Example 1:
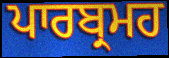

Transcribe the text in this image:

ਪਾਰਬ੍ਰਮਹ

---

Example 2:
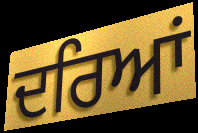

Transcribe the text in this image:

ਦਰਿਆਂ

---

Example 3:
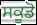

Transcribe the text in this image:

ਸਕੂਡੋ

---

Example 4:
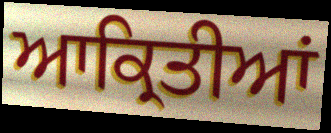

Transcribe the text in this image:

ਆਕ੍ਰਿਤੀਆਂ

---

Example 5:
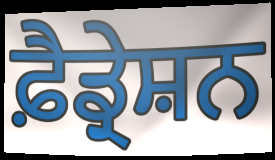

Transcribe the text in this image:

ਫ਼ੈਡ੍ਰੇਸ਼ਨ